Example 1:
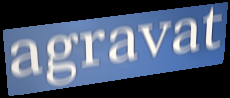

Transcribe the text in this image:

agravat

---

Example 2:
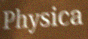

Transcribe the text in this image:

Physica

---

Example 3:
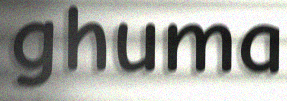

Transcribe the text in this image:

ghuma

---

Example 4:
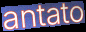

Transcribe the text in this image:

antato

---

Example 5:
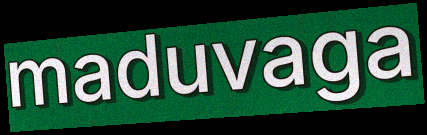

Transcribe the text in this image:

maduvaga